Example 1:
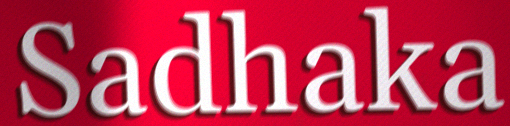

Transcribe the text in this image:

Sadhaka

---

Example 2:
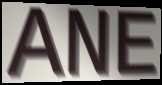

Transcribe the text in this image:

ANE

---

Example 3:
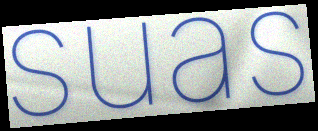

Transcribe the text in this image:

suas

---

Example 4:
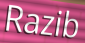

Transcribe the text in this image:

Razib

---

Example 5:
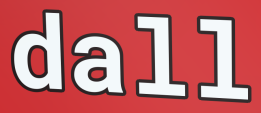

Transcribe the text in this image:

dall